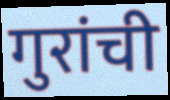
गुरांची